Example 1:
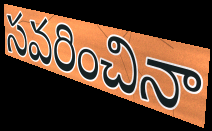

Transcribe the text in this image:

సవరించినా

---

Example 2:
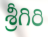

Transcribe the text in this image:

శ్రీగిరి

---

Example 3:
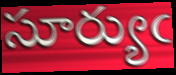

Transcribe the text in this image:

సూర్యుఁ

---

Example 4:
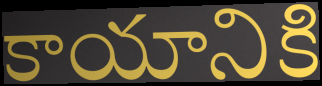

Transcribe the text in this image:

కాయానికి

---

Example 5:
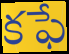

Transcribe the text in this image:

కఫే